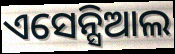
ଏସେନ୍ସିଆଲ